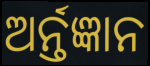
ଅର୍ନ୍ତଜ୍ଞାନ